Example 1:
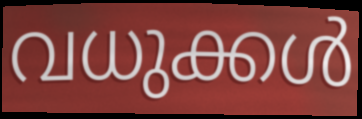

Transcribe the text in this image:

വധുക്കൾ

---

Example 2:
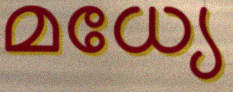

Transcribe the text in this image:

മധ്യേ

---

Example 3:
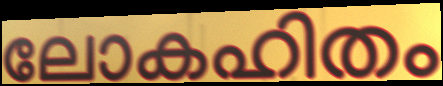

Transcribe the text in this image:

ലോകഹിതം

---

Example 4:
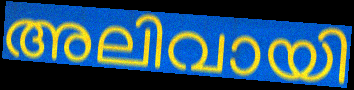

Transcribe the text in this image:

അലിവായി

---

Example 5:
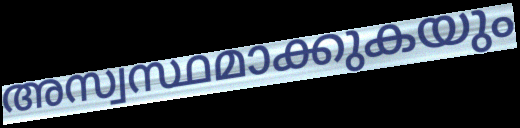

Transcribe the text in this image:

അസ്വസ്ഥമാക്കുകയും